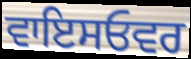
ਵਾਇਸਓਵਰ